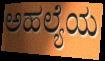
ಅಹಲ್ಯೆಯ